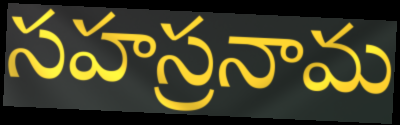
సహస్రనామ